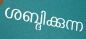
ശബ്ദിക്കുന്ന